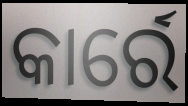
କାର୍ରେ